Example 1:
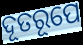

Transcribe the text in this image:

ଦୂତରୂପେ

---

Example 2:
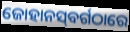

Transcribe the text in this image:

ଜୋହାନସ୍‌ବର୍ଗଠାରେ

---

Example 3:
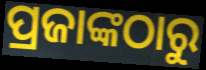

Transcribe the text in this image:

ପ୍ରଜାଙ୍କଠାରୁ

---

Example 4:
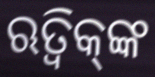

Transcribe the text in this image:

ଋତ୍ୱିକ୍‌ଙ୍କ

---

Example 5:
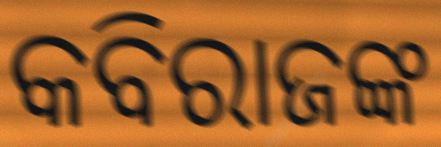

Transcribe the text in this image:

କବିରାଜଙ୍କ